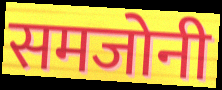
समजोनी